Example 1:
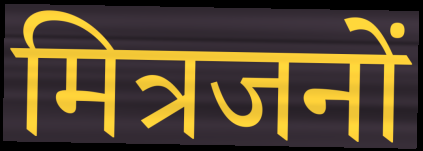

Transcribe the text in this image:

मित्रजनों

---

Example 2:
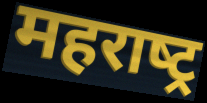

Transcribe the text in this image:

महराष्‍ट्र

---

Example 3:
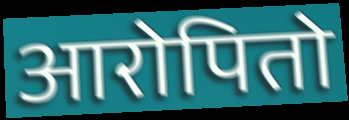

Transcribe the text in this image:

आरोपितो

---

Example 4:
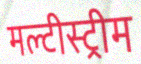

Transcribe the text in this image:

मल्टीस्ट्रीम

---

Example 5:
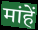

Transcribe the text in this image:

मांहें